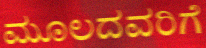
ಮೂಲದವರಿಗೆ